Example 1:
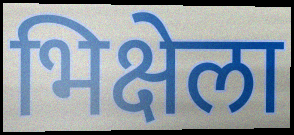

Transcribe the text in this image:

भिक्षेला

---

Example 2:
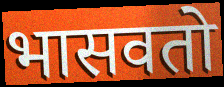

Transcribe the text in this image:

भासवतो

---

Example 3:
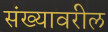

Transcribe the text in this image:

संख्यावरील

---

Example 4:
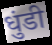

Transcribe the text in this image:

धुंडी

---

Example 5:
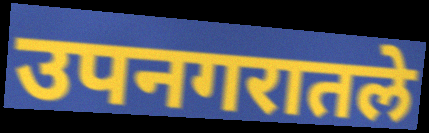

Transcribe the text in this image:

उपनगरातले